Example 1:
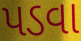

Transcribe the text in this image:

પડવા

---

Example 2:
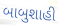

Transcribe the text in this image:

બાબુશાહી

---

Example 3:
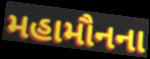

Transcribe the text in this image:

મહામૌનના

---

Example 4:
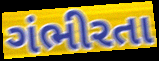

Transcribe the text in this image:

ગંભીરતા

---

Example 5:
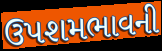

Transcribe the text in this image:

ઉપશમભાવની